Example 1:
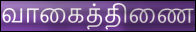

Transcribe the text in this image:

வாகைத்திணை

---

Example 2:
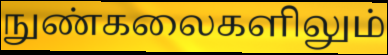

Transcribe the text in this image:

நுண்கலைகளிலும்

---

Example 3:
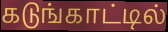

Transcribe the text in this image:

கடுங்காட்டில்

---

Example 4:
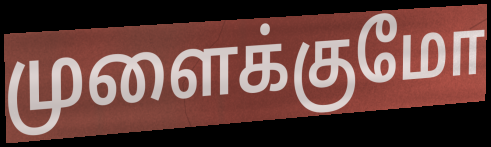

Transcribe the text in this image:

முளைக்குமோ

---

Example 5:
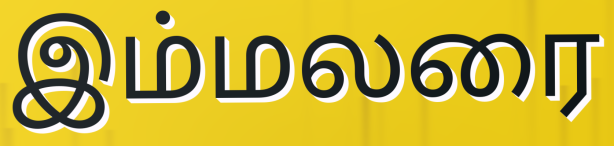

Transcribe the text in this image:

இம்மலரை